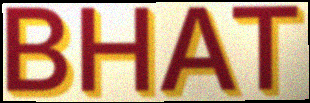
BHAT